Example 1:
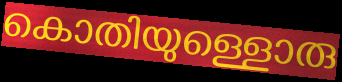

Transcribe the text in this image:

കൊതിയുള്ളൊരു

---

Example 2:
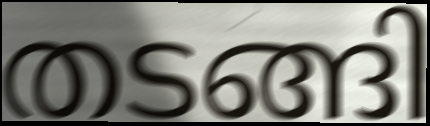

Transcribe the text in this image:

തടങ്ങി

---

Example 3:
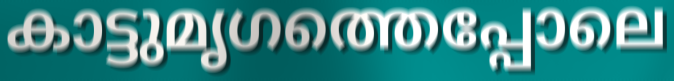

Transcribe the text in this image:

കാട്ടുമൃഗത്തെപ്പോലെ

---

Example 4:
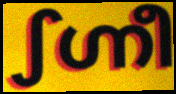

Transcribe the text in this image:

ഽഗ്നീ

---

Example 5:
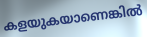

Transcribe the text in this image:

കളയുകയാണെങ്കിൽ